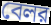
বেলর